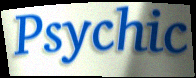
Psychic